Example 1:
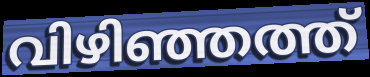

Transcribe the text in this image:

വിഴിഞ്ഞത്ത്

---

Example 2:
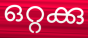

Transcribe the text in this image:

ഒറ്റക്കു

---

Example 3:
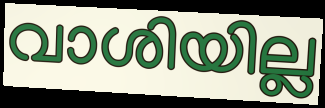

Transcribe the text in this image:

വാശിയില്ല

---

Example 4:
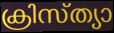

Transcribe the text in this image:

ക്രിസ്‌ത്യാ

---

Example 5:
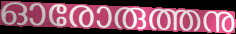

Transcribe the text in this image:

ഓരോരുത്തനു